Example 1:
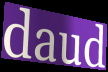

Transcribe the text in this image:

daud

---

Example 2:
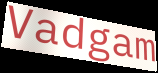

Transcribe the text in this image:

Vadgam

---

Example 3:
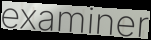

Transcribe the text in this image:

examiner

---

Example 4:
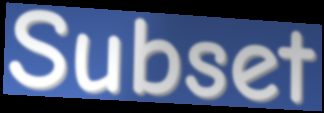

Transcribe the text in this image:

Subset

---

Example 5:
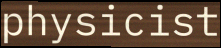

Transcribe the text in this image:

physicist